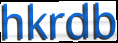
hkrdb